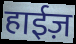
हाईज़